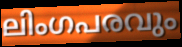
ലിംഗപരവും